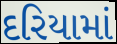
દરિયામાં